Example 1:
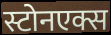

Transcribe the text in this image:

स्टोनएक्स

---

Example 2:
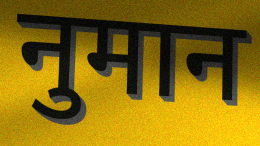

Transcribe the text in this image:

नुमान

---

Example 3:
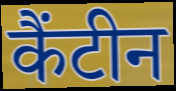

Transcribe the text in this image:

कैंटीन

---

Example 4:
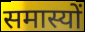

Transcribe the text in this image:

समास्यों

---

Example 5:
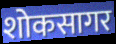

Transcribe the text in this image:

शोकसागर